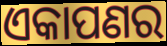
ଏକାପଣର